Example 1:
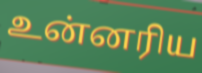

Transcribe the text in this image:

உன்னரிய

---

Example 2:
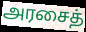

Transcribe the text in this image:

அரசைத்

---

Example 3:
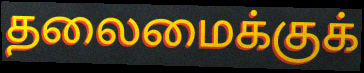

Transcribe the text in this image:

தலைமைக்குக்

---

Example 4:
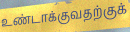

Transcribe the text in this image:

உண்டாக்குவதற்குக்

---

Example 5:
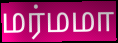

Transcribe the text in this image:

மர்மமா